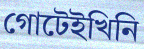
গোটেইখিনি